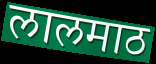
लालमाठ